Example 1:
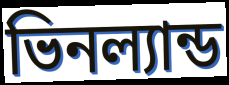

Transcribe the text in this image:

ভিনল্যান্ড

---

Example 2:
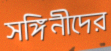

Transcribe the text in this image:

সঙ্গিনীদের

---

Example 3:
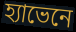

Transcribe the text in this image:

হ্যাভেনে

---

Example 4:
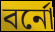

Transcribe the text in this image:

বর্নো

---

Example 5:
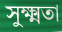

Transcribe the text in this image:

সুক্ষ্মতা